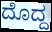
ದೊದ್ದ